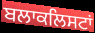
ਬਲਾਕਲਿਸਟਾਂ